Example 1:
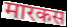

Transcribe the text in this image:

मारकस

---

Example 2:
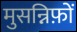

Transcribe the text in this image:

मुसन्निफ़ों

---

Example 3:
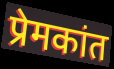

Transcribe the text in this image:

प्रेमकांत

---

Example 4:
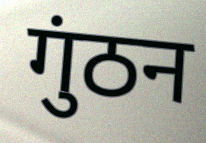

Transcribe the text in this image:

गुंठन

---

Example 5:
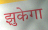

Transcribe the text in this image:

झुकेगा